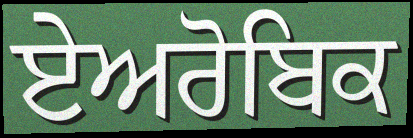
ਏਅਰੋਬਿਕ